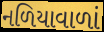
નળિયાવાળાં